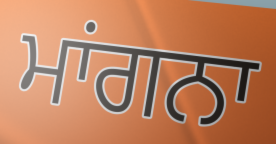
ਮਾਂਗਨਾ